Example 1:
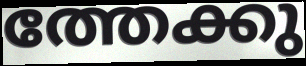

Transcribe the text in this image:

ത്തേക്കു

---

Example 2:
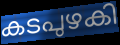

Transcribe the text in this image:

കടപുഴകി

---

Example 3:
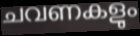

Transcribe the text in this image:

ചവണകളും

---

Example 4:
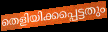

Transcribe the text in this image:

തെളിയിക്കപ്പെട്ടതും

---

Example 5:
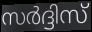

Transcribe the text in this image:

സർദ്ദിസ്